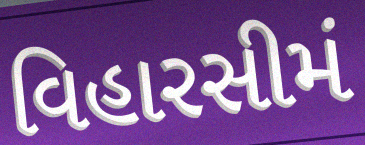
વિહારસીમં